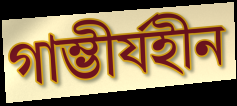
গাম্ভীর্যহীন